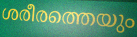
ശരീരത്തെയും